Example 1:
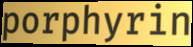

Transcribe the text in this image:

porphyrin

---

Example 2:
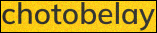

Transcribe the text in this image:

chotobelay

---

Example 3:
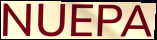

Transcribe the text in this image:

NUEPA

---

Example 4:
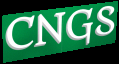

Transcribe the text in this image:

CNGS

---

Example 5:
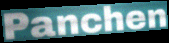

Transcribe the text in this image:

Panchen